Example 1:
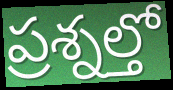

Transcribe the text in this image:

ప్రశ్నల్తో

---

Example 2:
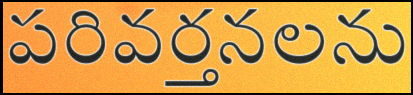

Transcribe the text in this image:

పరివర్తనలను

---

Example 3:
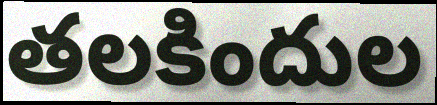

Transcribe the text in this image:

తలకిందుల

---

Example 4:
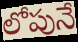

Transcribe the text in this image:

లోపునే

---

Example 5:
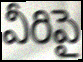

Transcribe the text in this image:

వీరిపై